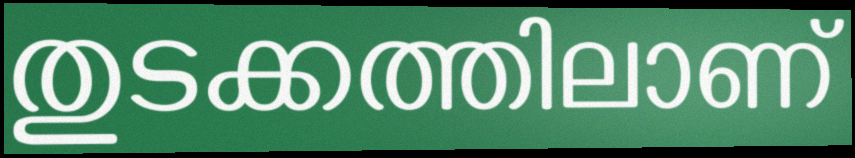
തുടക്കത്തിലാണ്